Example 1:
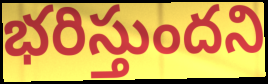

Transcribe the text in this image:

భరిస్తుందని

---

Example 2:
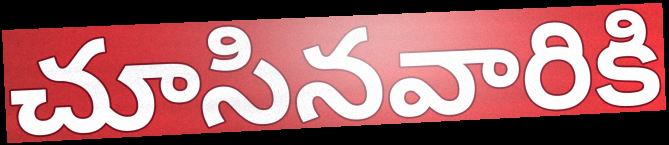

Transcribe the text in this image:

చూసినవారికి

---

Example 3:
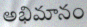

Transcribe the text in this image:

అభిమానం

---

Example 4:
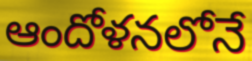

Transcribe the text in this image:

ఆందోళనలోనే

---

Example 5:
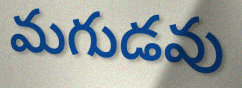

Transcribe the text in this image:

మగుడవు